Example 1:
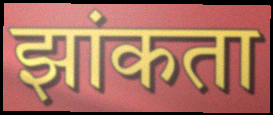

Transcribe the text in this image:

झांकता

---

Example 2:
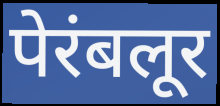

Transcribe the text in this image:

पेरंबलूर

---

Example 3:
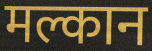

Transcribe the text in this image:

मल्कान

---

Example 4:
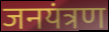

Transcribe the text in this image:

जनयंत्रण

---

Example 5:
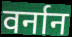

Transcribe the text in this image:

वर्नान